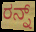
ರನ್ನ್